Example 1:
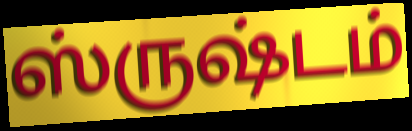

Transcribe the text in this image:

ஸ்ருஷ்டம்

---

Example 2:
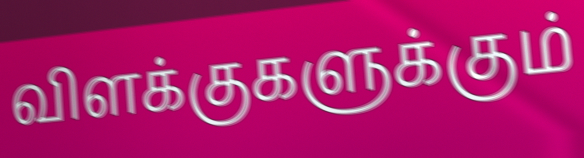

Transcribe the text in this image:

விளக்குகளுக்கும்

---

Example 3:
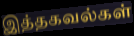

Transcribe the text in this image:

இத்தகவல்கள்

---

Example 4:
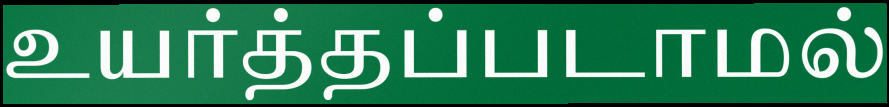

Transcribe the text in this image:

உயர்த்தப்படாமல்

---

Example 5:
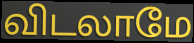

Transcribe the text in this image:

விடலாமே